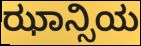
ಝಾನ್ಸಿಯ